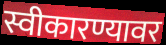
स्वीकारण्यावर